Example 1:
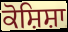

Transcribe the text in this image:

ਕੋਸ਼ਿਸ਼ਾ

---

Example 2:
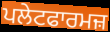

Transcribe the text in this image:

ਪਲੇਟਫਾਰਮਜ਼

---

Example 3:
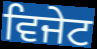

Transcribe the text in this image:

ਵਿਜੇਟ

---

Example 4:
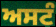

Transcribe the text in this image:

ਅਸਟੰ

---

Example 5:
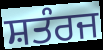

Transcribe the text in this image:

ਸ਼ਤੰਰਜ